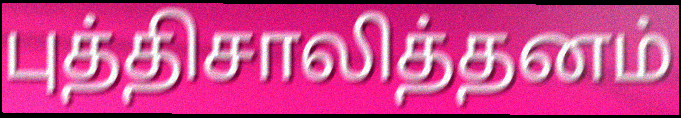
புத்திசாலித்தனம்